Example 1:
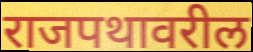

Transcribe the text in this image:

राजपथावरील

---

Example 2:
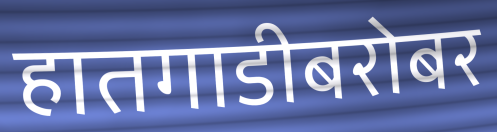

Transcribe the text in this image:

हातगाडीबरोबर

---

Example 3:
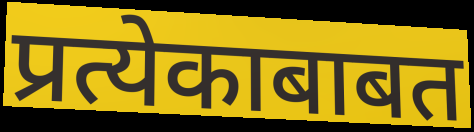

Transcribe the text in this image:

प्रत्येकाबाबत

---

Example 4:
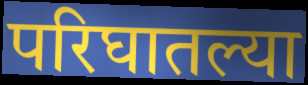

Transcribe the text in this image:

परिघातल्या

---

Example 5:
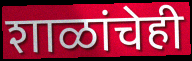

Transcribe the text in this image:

शाळांचेही